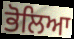
ਭੋਲਿਆ